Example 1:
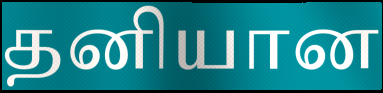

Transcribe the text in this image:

தனியான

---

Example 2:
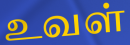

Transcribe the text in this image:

உவள்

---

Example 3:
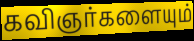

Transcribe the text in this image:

கவிஞர்களையும்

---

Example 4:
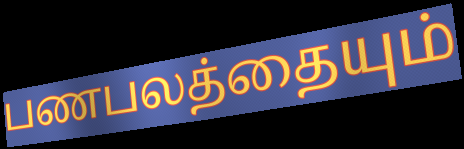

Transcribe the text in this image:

பணபலத்தையும்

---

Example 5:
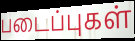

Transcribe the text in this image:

படைப்புகள்